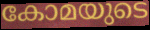
കോമയുടെ